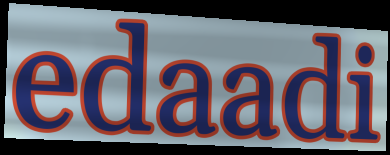
edaadi